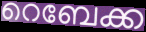
റെബേക്ക